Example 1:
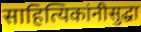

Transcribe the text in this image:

साहित्यिकांनीसुद्धा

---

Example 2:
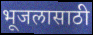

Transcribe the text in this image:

भूजलासाठी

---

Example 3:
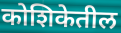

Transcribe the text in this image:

कोशिकेतील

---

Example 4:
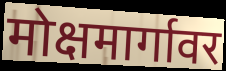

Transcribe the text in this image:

मोक्षमार्गावर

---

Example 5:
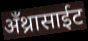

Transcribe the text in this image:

अँथ्रासाईट